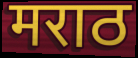
मराठ